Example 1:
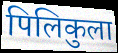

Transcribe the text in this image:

पिलिकुला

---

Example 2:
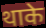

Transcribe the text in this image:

थाके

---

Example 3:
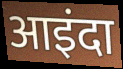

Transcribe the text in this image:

आइंदा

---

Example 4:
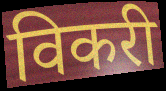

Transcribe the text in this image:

विकरी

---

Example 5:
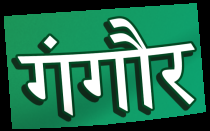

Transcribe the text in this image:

गंगौर